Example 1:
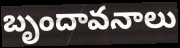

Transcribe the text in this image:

బృందావనాలు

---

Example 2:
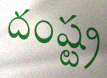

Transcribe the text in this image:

దంష్ట్ర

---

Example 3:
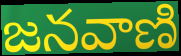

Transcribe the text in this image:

జనవాణి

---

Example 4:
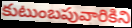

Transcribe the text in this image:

కుటుంబపువారికిని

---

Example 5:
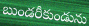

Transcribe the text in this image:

బుండరీకుండును